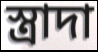
স্ত্রাদা